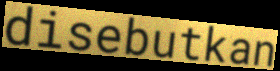
disebutkan